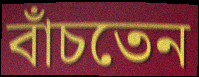
বাঁচতেন